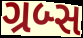
ગ્રબ્સ